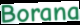
Borana